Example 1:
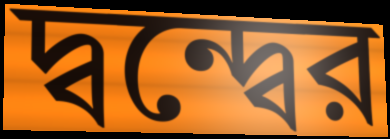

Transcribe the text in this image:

দ্বন্দ্বের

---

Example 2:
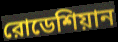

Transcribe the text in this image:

রোডেশিয়ান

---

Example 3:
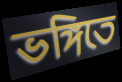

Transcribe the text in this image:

ভঙ্গিতে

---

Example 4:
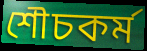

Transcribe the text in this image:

শৌচকর্ম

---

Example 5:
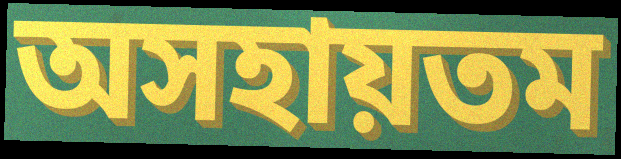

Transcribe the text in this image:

অসহায়তম